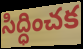
సిద్ధించక